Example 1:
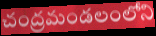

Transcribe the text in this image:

చంద్రమండలంలోని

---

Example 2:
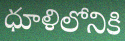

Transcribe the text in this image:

ధూళిలోనికి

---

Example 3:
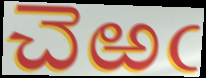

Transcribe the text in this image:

చెఱఁ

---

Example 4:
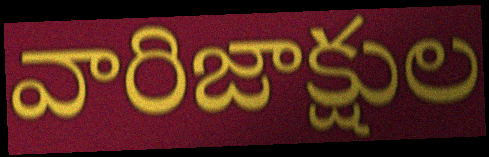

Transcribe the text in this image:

వారిజాక్షుల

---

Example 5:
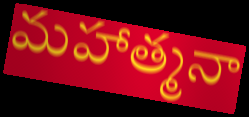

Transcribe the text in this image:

మహాత్మనా